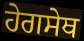
ਹੇਗਸੇਥ